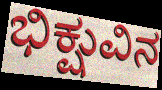
ಭಿಕ್ಷುವಿನ